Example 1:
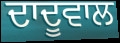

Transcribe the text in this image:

ਦਾਦੂਵਾਲ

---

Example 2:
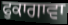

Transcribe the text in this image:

ਫੁਕਾਗਾਵਾ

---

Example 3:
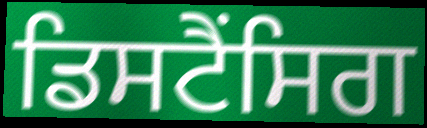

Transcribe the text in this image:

ਡਿਸਟੈਂਸਿਗ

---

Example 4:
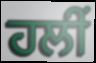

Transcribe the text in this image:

ਹਲੀਂ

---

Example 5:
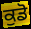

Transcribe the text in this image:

ਕੁਡੋ